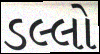
ડલ્લો